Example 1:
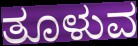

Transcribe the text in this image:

ತೂಳುವ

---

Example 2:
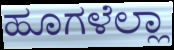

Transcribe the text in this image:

ಹೂಗಳೆಲ್ಲಾ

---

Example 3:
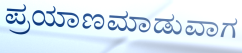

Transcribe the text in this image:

ಪ್ರಯಾಣಮಾಡುವಾಗ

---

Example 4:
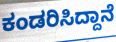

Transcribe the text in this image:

ಕಂಡರಿಸಿದ್ದಾನೆ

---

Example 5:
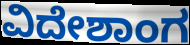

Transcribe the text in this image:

ವಿದೇಶಾಂಗ